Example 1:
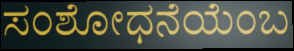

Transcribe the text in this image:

ಸಂಶೋಧನೆಯೆಂಬ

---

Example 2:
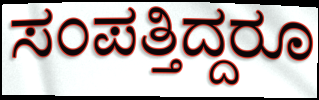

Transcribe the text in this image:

ಸಂಪತ್ತಿದ್ದರೂ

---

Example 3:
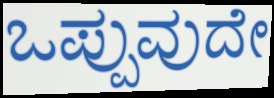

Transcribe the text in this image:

ಒಪ್ಪುವುದೇ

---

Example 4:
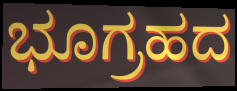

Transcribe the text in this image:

ಭೂಗ್ರಹದ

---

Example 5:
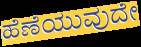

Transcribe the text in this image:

ಹೆಣೆಯುವುದೇ